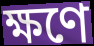
ক্ষণে